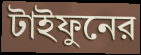
টাইফুনের